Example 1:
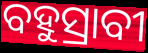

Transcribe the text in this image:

ବହୁସ୍ରାବୀ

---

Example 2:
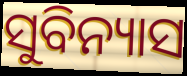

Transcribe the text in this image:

ସୁବିନ୍ୟାସ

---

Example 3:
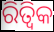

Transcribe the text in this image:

ରିତ୍ୱିକ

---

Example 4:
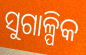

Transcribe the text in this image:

ସୁଗାଳ୍ପିକ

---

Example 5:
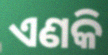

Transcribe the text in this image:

ଏଣକି